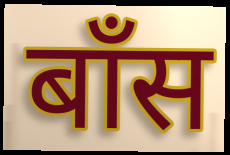
बॉंस